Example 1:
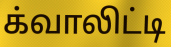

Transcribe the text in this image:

க்வாலிட்டி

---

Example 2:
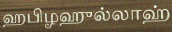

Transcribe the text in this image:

ஹபிழஹுல்லாஹ்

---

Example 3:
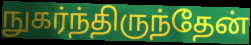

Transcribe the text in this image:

நுகர்ந்திருந்தேன்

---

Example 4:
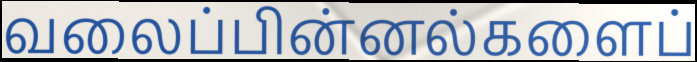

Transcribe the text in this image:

வலைப்பின்னல்களைப்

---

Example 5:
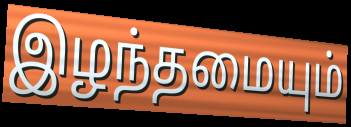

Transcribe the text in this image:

இழந்தமையும்